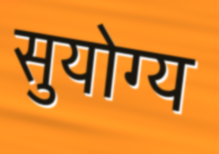
सुयोग्य